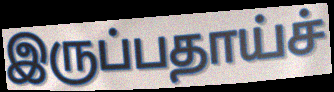
இருப்பதாய்ச்